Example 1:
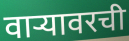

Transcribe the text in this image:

वार्‍यावरची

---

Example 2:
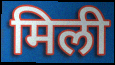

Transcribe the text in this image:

मिली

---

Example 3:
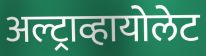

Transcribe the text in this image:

अल्ट्राव्हायोलेट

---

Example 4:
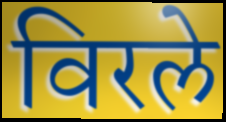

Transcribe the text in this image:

विरले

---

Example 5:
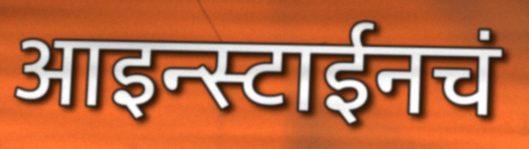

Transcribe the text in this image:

आइन्स्टाईनचं